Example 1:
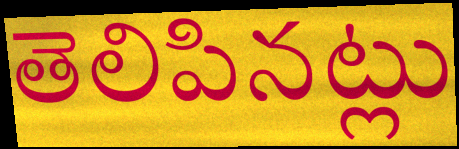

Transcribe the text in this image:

తెలిపినట్లు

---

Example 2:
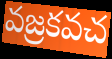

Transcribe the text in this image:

వజ్రకవచ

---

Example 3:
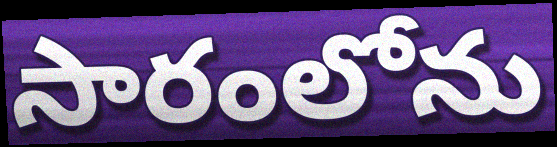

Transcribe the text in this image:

సారంలోను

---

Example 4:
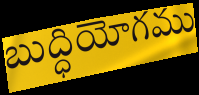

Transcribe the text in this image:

బుద్ధియోగము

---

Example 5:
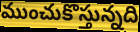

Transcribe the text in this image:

ముంచుకొస్తున్నది